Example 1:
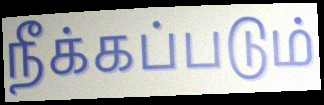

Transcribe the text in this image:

நீக்கப்படும்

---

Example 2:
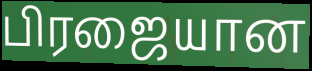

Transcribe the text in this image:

பிரஜையான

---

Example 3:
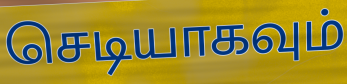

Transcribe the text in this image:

செடியாகவும்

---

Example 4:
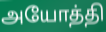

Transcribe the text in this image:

அயோத்தி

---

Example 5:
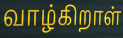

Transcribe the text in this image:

வாழ்கிறாள்